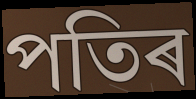
পতিৰ